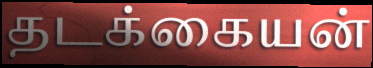
தடக்கையன்